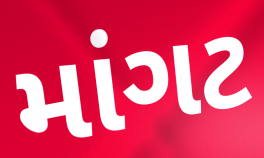
માંગટ